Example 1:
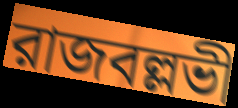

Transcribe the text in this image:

রাজবল্লভী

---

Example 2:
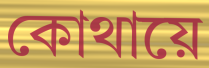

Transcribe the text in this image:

কোথায়ে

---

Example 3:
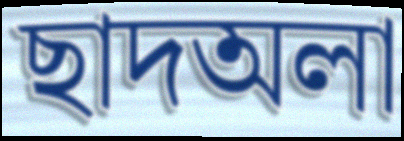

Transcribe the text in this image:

ছাদঅলা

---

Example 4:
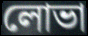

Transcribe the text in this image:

লোভা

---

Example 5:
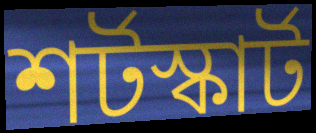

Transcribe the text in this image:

শর্টস্কার্ট